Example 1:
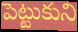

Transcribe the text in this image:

పెట్టుకుని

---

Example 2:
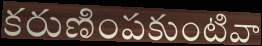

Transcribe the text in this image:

కరుణింపకుంటివా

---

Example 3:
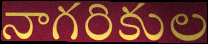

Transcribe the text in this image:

నాగరికుల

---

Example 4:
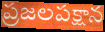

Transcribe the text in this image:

ప్రజలపక్షాన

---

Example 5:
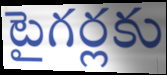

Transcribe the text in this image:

టైగర్లకు